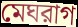
মেঘরাগ